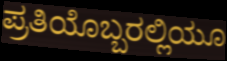
ಪ್ರತಿಯೊಬ್ಬರಲ್ಲಿಯೂ